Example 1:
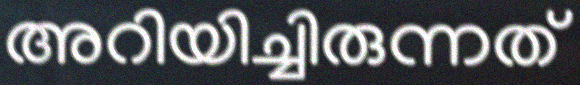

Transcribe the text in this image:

അറിയിച്ചിരുന്നത്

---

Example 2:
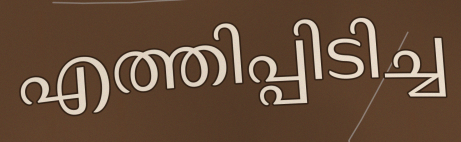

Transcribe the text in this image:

എത്തിപ്പിടിച്ച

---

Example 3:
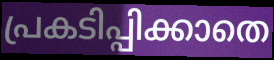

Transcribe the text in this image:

പ്രകടിപ്പിക്കാതെ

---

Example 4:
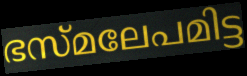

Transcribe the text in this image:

ഭസ്മലേപമിട്ട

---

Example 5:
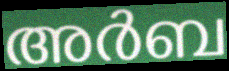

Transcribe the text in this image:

അർബ